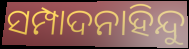
ସମ୍ପାଦନାହିନ୍ଦୁ